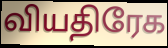
வியதிரேக